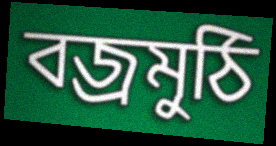
বজ্রমুঠি